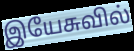
இயேசுவில்